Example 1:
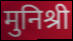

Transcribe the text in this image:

मुनिश्री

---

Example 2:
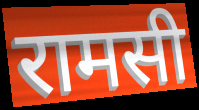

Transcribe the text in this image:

रामसी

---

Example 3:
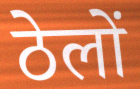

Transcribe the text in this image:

ठेलों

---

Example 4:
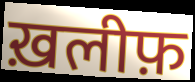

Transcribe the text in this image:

ख़लीफ़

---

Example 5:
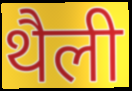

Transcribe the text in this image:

थैली